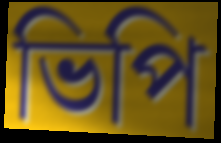
ভিপি